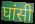
घांसी